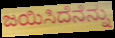
ಜಯಿಸಿದೆನೆನ್ನು